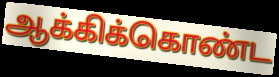
ஆக்கிக்கொண்ட